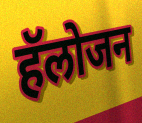
हॅलोजन